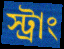
স্ট্রাং